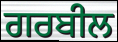
ਗਰਬੀਲ